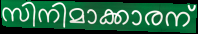
സിനിമാക്കാരന്